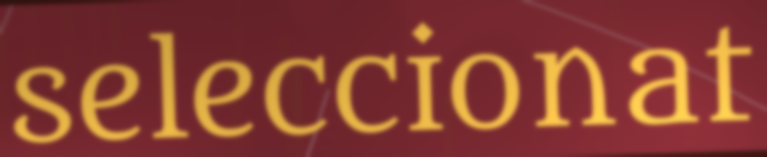
seleccionat